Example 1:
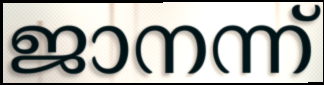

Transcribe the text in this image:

ജാനന്ന്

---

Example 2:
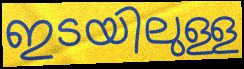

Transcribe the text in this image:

ഇടയിലുള്ള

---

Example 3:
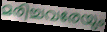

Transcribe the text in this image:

മരിച്ചവരേയും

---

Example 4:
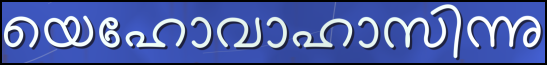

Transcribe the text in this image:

യെഹോവാഹാസിന്നു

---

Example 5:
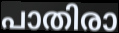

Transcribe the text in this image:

പാതിരാ